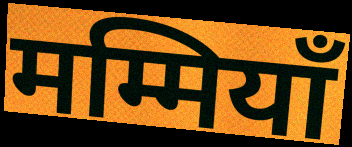
मम्मियाँ